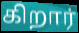
கிறார்